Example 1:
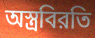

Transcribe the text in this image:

অস্ত্রবিরতি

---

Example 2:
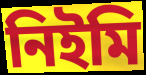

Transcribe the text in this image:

নিইমি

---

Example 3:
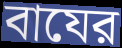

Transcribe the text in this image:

বাযের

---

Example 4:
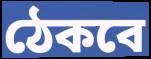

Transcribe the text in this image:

ঠেকবে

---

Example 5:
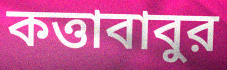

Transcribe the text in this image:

কত্তাবাবুর